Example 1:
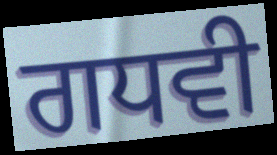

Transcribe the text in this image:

ਗਧਵੀ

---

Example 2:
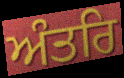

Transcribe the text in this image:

ਅੰਤਰਿ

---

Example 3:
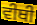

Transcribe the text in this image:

ਵੀਥੀ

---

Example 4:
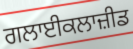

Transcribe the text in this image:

ਗਲਾਈਕਲਾਜ਼ੀਡ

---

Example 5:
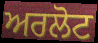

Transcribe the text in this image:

ਅਰਲੋਟ